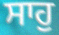
ਸਾਹੁ